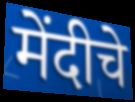
मेंदीचे